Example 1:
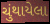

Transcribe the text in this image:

ચુંથાયેલા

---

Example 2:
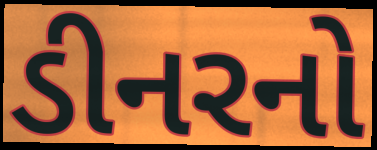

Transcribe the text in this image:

ડીનરનો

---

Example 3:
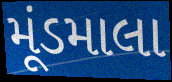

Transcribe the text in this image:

મૂંડમાલા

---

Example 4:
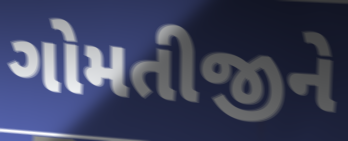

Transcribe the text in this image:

ગોમતીજીને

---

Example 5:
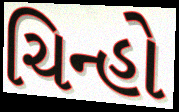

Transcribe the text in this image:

ચિન્હો